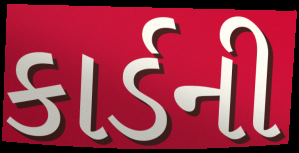
કાર્ડની